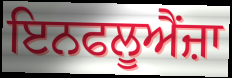
ਇਨਫਲੂਐਂਜ਼ਾ